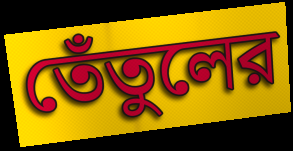
তেঁতুলের